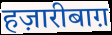
हज़ारीबाग़